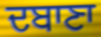
ਦਬਾਣਾ